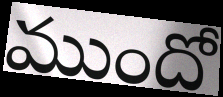
ముందో